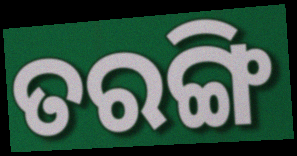
ତରଙ୍ଗି